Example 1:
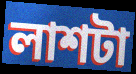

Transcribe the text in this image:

লাশটা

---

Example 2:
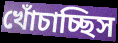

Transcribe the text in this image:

খোঁচাচ্ছিস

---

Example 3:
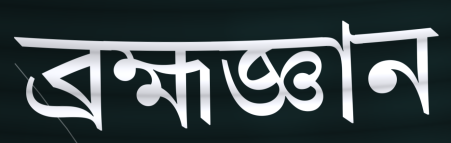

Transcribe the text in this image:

ব্রহ্মজ্ঞান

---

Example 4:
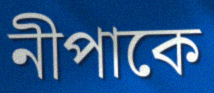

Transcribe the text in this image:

নীপাকে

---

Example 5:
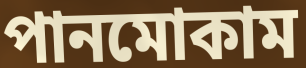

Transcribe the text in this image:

পানমোকাম